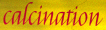
calcination